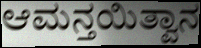
ಆಮನ್ತಯಿತ್ವಾನ